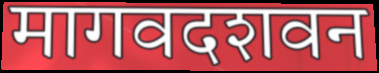
मागवदशवन